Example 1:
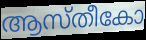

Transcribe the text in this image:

ആസ്തീകോ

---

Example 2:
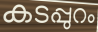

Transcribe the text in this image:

കടപ്പുറം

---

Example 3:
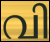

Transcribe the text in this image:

വി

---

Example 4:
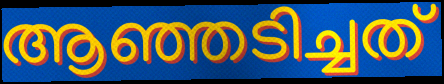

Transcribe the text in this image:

ആഞ്ഞടിച്ചത്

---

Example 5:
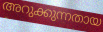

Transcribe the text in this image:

അറുക്കുന്നതായ